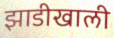
झाडीखाली